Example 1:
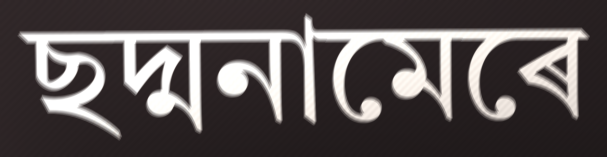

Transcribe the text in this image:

ছদ্মনামেৰে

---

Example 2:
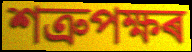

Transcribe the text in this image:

শত্ৰুপক্ষৰ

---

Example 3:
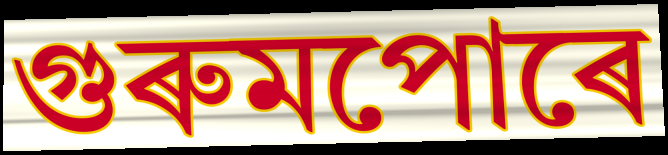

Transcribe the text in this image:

গুৰুমপোৰে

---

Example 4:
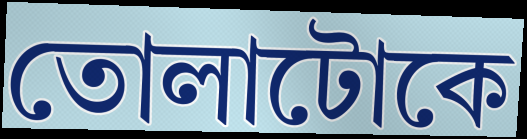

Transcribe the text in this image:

তোলাটোকে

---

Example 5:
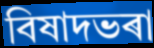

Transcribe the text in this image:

বিষাদভৰা